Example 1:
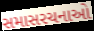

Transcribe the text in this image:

સમાસરચનાઓ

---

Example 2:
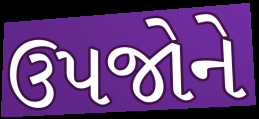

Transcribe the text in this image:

ઉપજોને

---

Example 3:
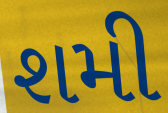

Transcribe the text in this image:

શમી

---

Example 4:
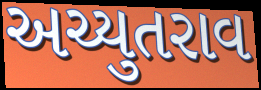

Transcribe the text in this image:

અચ્યુતરાવ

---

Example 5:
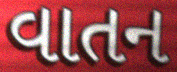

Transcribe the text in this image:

વાતન